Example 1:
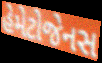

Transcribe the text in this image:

હેમેટોજેનસ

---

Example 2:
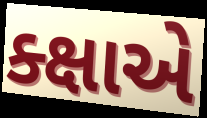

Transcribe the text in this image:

ક્ક્ષાએ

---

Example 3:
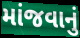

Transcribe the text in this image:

માંજવાનું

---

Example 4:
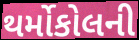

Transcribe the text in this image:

થર્મોકોલની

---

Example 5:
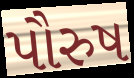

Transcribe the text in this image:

પૌરુષ